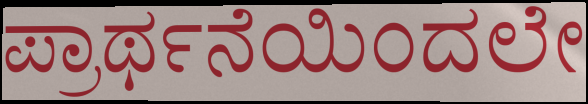
ಪ್ರಾರ್ಥನೆಯಿಂದಲೇ